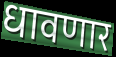
धावणार